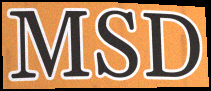
MSD